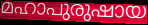
മഹാപുരുഷായ